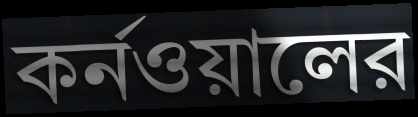
কর্নওয়ালের